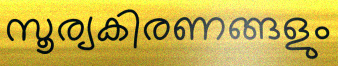
സൂര്യകിരണങ്ങളും